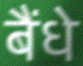
बैंधे